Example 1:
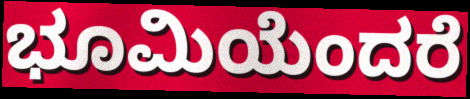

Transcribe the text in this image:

ಭೂಮಿಯೆಂದರೆ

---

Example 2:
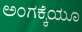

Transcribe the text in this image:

ಅಂಗಕ್ಕೆಯೂ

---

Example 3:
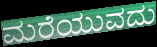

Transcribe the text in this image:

ಮರೆಯುವದು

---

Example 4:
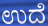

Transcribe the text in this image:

ಉದೆ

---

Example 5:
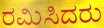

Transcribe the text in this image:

ರಮಿಸಿದರು